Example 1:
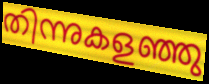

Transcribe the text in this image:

തിന്നുകളഞ്ഞു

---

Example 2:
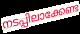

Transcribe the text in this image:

നടപ്പിലാക്കേണ്ട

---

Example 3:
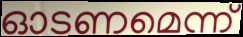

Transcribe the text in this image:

ഓടണമെന്ന്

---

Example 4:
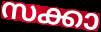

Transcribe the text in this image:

സക്കാ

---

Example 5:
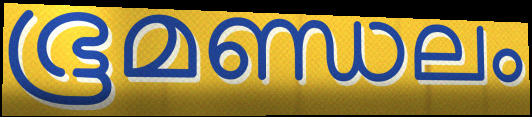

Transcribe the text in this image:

ഭൂമണ്ഡലം